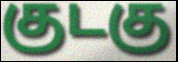
குடகு